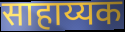
साहाय्यक